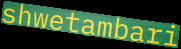
shwetambari